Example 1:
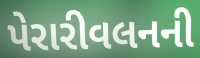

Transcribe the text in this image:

પેરારીવલનની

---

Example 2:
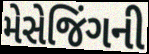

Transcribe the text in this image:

મેસેજિંગની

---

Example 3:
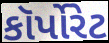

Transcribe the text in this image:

કૉર્પોરેટ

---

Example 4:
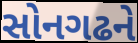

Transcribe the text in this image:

સોનગઢને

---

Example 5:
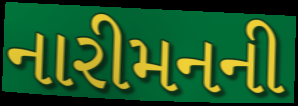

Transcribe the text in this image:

નારીમનની